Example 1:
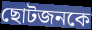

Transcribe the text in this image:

ছোটজনকে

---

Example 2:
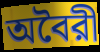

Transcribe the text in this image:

অবৈরী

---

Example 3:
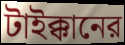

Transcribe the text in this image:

টাইক্কানের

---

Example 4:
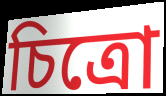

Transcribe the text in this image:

চিত্রো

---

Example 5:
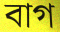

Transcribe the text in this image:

বাগ